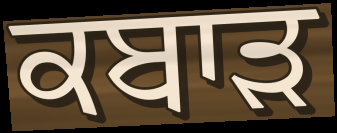
ਕਬਾੜ